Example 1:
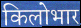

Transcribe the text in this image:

किलोभार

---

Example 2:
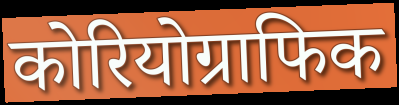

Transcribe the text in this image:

कोरियोग्राफिक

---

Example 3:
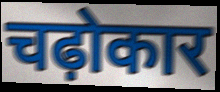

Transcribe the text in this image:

चढ़ोकार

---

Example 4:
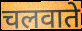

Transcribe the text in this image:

चलवाते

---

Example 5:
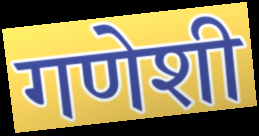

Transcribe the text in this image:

गणेशी